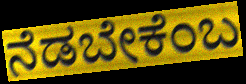
ನೆಡಬೇಕೆಂಬ